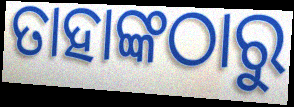
ତାହାଙ୍କଠାରୁ